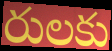
రులకు